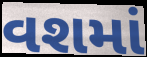
વશમાં